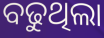
ବଢୁଥିଲା